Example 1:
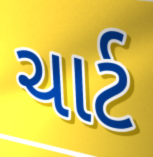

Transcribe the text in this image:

ચાર્ટ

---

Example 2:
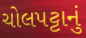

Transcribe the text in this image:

ચોલપટ્ટાનું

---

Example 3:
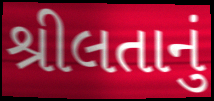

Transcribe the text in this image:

શ્રીલતાનું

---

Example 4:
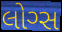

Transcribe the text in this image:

લોગ્સ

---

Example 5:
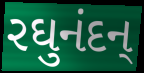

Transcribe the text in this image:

રઘુનંદન્